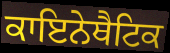
ਕਾਇਨੇਥੈਟਿਕ